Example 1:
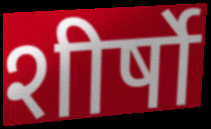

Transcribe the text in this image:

शीर्षो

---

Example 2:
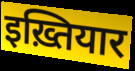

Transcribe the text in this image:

इख़्तियार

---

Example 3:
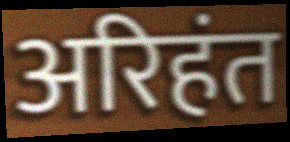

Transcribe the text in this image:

अरिहंत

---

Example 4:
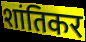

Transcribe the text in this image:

शांतिकर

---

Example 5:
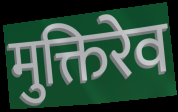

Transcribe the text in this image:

मुक्तिरेव